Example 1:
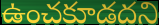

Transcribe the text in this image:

ఉంచకూడదని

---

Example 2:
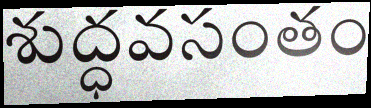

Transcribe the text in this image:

శుద్ధవసంతం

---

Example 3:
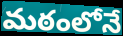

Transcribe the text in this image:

మఠంలోనే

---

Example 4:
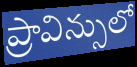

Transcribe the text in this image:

ప్రావిన్సులో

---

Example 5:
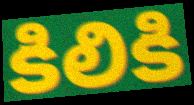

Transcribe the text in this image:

కిలికి